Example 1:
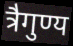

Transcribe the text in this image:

त्रैगुण्य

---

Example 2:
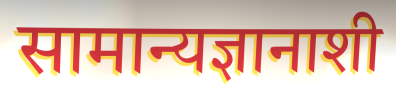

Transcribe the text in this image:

सामान्यज्ञानाशी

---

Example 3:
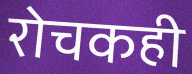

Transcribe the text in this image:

रोचकही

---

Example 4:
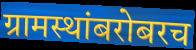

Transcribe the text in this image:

ग्रामस्थांबरोबरच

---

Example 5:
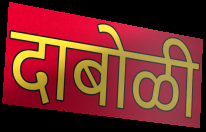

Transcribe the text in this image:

दाबोळी